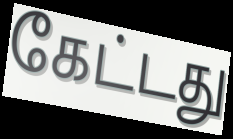
கேட்டது